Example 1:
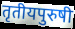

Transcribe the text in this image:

तृतीयपुरुषी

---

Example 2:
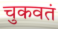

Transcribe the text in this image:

चुकवतं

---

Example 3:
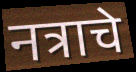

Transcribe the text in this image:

नत्राचे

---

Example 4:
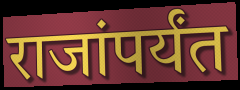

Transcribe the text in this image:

राजांपर्यंत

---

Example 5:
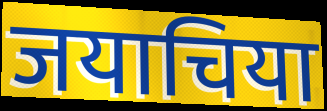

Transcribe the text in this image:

जयाचिया